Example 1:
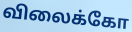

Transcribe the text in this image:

விலைக்கோ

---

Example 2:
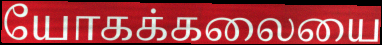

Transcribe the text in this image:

யோகக்கலையை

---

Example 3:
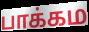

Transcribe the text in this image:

பாக்கம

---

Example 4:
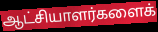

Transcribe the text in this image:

ஆட்சியாளர்களைக்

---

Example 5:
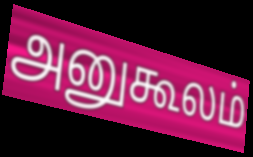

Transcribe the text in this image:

அனுகூலம்